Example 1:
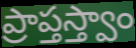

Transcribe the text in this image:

ప్రాప్తస్త్వాం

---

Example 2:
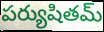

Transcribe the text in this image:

పర్యుషితమ్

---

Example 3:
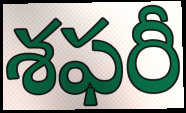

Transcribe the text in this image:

శఫరీ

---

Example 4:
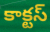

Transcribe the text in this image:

కాక్టస్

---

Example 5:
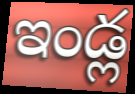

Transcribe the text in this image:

ఇండ్ల